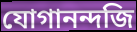
যোগানন্দজি